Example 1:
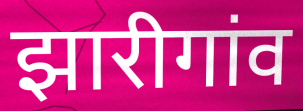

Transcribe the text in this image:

झारीगांव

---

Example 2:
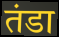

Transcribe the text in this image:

तंडा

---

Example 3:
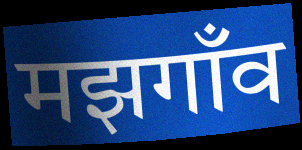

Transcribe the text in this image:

मझगाँव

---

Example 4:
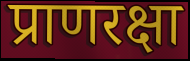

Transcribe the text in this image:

प्राणरक्षा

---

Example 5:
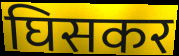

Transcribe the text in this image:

घिसकर